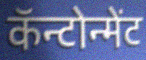
कॅन्टोन्मेंट